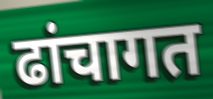
ढांचागत